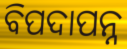
ବିପଦାପନ୍ନ